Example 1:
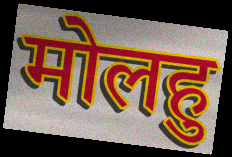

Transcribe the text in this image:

मोलहु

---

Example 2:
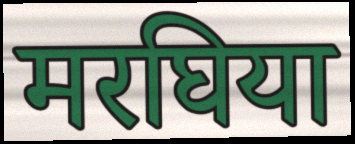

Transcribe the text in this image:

मरघिया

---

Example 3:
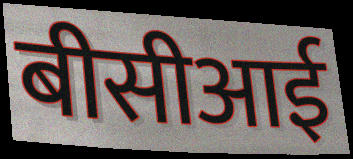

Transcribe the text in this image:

बीसीआई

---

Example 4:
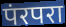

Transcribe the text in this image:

पंरपरा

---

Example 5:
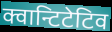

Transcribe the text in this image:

क्वान्टिटेटिव